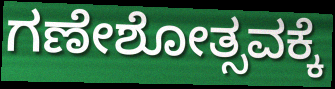
ಗಣೇಶೋತ್ಸವಕ್ಕೆ